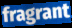
fragrant